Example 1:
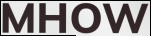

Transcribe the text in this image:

MHOW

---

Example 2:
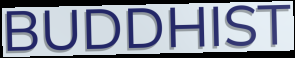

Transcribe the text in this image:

BUDDHIST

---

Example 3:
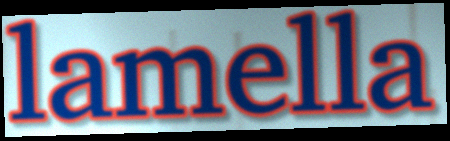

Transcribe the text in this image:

lamella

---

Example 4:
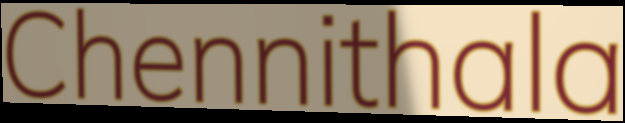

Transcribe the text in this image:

Chennithala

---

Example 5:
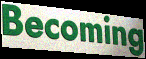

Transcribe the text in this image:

Becoming